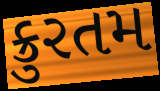
ક્રુરતમ